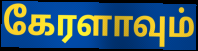
கேரளாவும்